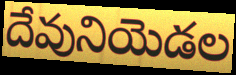
దేవునియెడల